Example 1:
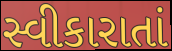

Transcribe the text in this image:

સ્વીકારાતાં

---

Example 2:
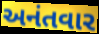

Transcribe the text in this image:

અનંતવાર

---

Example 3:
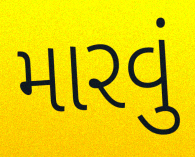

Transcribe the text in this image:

મારવું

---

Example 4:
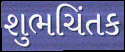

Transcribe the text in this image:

શુભચિંતક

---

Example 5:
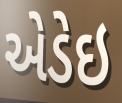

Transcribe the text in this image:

એડેઇ